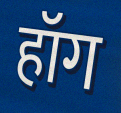
हॉग